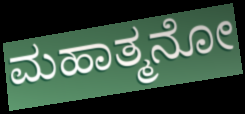
ಮಹಾತ್ಮನೋ